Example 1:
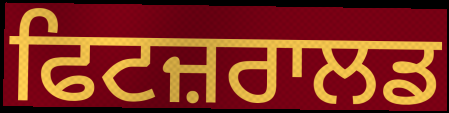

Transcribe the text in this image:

ਫਿਟਜ਼ਰਾਲਡ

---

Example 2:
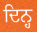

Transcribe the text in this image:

ਦਿਨ੍ਹ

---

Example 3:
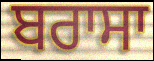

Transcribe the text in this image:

ਬਰਾਸਾ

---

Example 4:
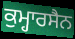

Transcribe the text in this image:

ਕੁਮ੍ਹਾਰਸੈਨ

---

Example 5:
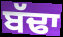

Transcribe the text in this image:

ਬੱਢਾ